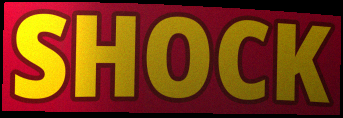
SHOCK